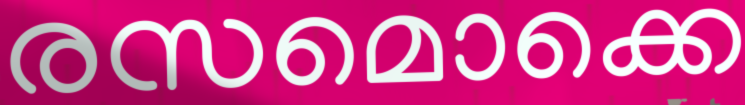
രസമൊക്കെ